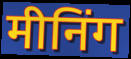
मीनिंग